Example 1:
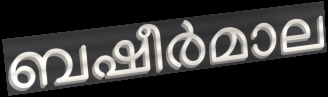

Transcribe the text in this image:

ബഷീർമാല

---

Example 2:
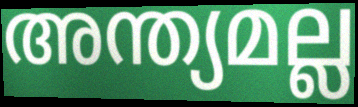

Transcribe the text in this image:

അന്ത്യമല്ല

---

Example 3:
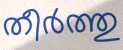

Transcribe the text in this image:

തീർത്തു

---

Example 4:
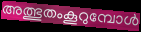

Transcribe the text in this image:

അത്ഭുതംകൂറുമ്പോൾ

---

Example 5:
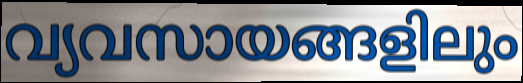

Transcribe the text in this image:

വ്യവസായങ്ങളിലും